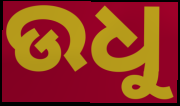
ଉଧୁ